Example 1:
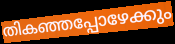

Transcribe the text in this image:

തികഞ്ഞപ്പോഴേക്കും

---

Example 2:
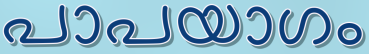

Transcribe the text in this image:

പാപയാഗം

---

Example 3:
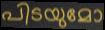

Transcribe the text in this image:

പിടയുമോ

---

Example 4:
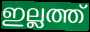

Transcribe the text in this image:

ഇല്ലത്ത്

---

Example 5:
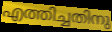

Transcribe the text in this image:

എത്തിച്ചതിനു